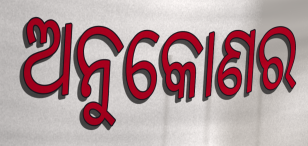
ଅନୁକୋଣର